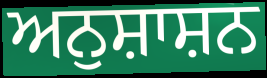
ਅਨੁਸ਼ਾਸ਼ਨ